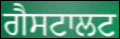
ਗੈਸਟਾਲਟ